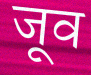
जूव